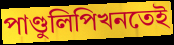
পাণ্ডুলিপিখনতেই